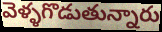
వెళ్ళగొడుతున్నారు